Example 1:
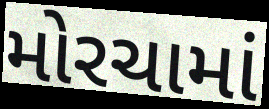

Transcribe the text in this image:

મોરચામાં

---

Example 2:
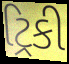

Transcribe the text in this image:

ટ્રિકી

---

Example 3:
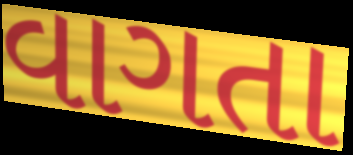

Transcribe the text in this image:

વાગતા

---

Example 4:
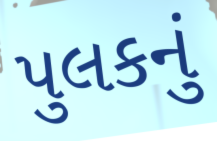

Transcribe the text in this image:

પુલકનું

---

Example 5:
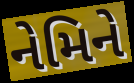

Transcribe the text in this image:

નેમિને